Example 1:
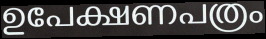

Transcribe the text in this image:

ഉപേക്ഷണപത്രം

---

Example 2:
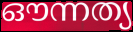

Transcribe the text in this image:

ഔന്നത്യ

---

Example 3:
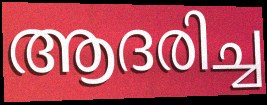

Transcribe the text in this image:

ആദരിച്ച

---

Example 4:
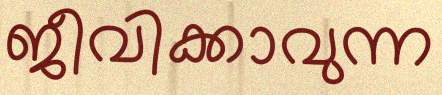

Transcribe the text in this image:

ജീവിക്കാവുന്ന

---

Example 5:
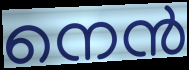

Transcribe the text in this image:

നെൻ